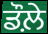
ਡੌਲ਼ੇ